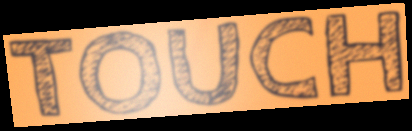
TOUCH